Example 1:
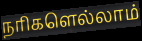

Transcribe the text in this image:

நரிகளெல்லாம்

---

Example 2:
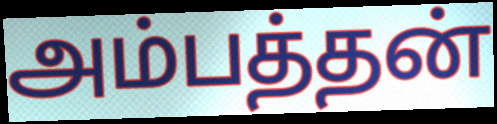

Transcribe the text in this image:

அம்பத்தன்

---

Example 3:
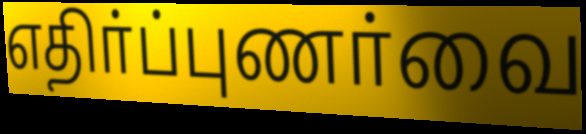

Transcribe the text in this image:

எதிர்ப்புணர்வை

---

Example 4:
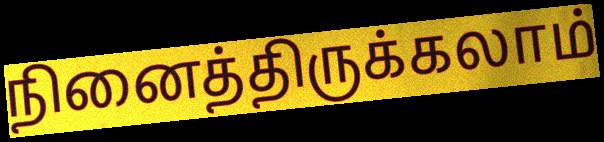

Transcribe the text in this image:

நினைத்திருக்கலாம்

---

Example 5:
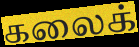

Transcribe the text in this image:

கலைக்